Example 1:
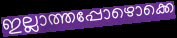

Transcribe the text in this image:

ഇല്ലാത്തപ്പോഴൊക്കെ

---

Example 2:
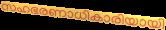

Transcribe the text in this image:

സഹഭരണാധികാരിയായി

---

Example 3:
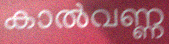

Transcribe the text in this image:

കാൽവണ്ണ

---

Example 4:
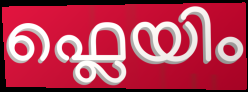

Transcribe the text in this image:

ഫ്ലെയിം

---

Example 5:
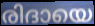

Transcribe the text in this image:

രിദായെ